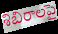
శిబిరాలపై